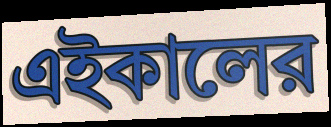
এইকালের